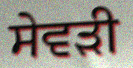
ਸੇਵੜੀ